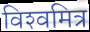
विश्वमित्र